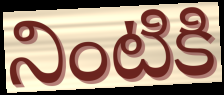
నింటికి